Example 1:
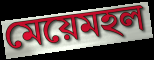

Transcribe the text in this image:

মেয়েমহল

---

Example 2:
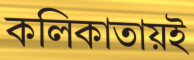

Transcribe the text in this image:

কলিকাতায়ই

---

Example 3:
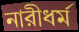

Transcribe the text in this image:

নারীধর্ম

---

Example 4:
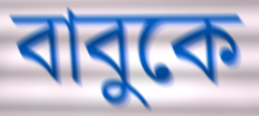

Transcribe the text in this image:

বাবুকে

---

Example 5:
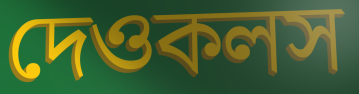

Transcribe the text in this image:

দেওকলস